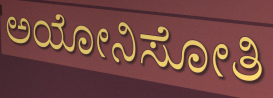
ಅಯೋನಿಸೋತಿ